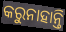
କରୁନାହାନ୍ତି